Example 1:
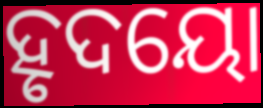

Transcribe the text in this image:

ହୃଦୟୋ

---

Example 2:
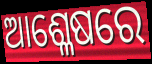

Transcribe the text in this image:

ଆଶ୍ଳେଷରେ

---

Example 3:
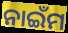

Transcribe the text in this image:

ନାଇଁମ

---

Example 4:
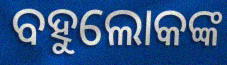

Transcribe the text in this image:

ବହୁଲୋକଙ୍କ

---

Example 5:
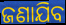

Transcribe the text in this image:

ଜଣାଯିବ